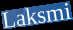
Laksmi